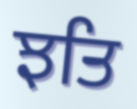
ਝਤਿ